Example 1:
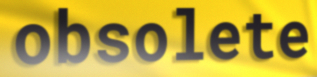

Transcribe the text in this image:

obsolete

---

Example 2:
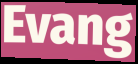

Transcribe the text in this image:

Evang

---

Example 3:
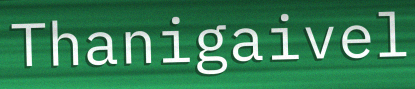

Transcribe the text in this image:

Thanigaivel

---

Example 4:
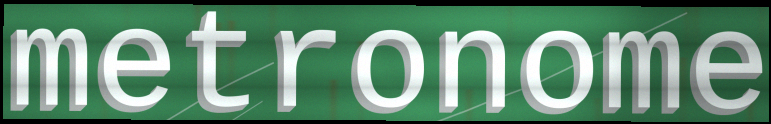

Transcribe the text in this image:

metronome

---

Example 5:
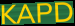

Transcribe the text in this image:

KAPD